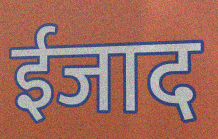
ईजाद